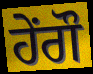
ਹੇਂਗੌ